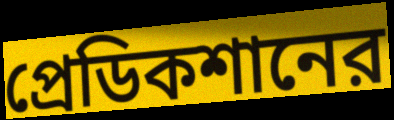
প্রেডিকশানের